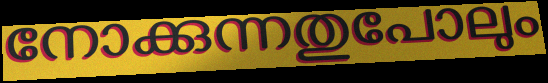
നോക്കുന്നതുപോലും